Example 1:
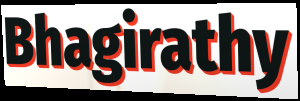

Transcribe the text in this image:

Bhagirathy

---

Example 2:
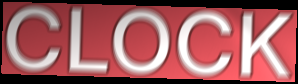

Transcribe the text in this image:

CLOCK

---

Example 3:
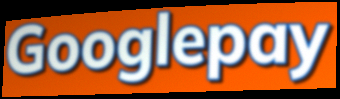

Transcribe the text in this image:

Googlepay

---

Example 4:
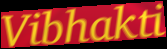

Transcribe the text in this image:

Vibhakti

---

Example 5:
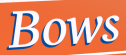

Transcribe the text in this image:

Bows